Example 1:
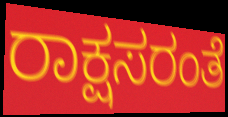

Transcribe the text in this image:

ರಾಕ್ಷಸರಂತೆ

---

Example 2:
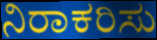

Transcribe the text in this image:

ನಿರಾಕರಿಸು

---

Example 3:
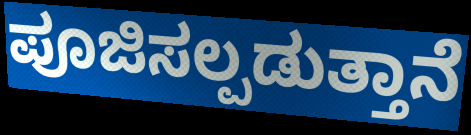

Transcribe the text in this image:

ಪೂಜಿಸಲ್ಪಡುತ್ತಾನೆ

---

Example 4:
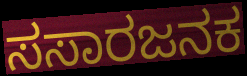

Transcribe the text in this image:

ಸಸಾರಜನಕ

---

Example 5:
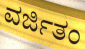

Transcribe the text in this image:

ವರ್ಜಿತಂ